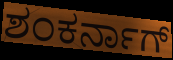
ಶಂಕರ್ನಾಗ್